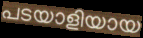
പടയാളിയായ